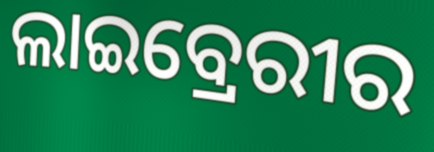
ଲାଇବ୍ରେରୀର